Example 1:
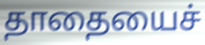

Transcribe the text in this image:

தாதையைச்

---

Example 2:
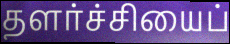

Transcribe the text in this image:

தளர்ச்சியைப்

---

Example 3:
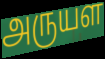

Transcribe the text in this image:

அருயள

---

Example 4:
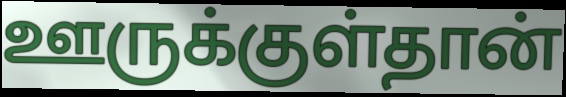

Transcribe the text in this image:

ஊருக்குள்தான்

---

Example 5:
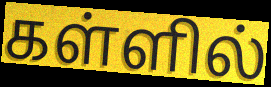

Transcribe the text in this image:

கள்ளில்